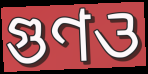
গুণও